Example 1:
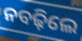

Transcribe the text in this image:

ନବଢ଼ିଲେ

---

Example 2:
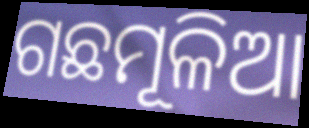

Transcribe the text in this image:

ଗଛମୂଳିଆ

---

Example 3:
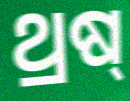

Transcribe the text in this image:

ଥ୍ରଷ୍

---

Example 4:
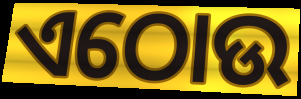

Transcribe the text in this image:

ଏଠୋଉ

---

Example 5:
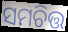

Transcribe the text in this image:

ସମଚିତ୍ତ